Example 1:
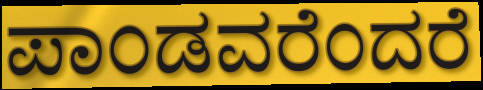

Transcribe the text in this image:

ಪಾಂಡವರೆಂದರೆ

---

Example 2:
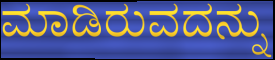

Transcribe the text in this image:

ಮಾಡಿರುವದನ್ನು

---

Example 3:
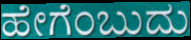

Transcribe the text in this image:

ಹೇಗೆಂಬುದು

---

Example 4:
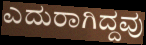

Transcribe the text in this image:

ಎದುರಾಗಿದ್ದವು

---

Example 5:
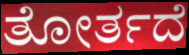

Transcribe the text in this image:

ತೋರ್ತದೆ